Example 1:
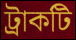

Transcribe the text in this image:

ট্রাকটি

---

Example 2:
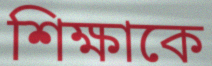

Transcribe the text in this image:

শিক্ষাকে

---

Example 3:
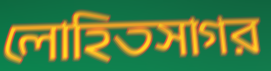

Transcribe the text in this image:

লোহিতসাগর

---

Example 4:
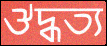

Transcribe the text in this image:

ঔদ্ধত্য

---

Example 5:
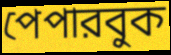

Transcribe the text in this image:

পেপারবুক